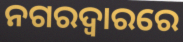
ନଗରଦ୍ୱାରରେ